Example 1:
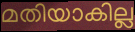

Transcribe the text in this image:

മതിയാകില്ല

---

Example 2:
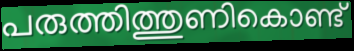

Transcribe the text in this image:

പരുത്തിത്തുണികൊണ്ട്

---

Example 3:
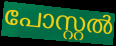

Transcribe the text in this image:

പോസ്റ്റൽ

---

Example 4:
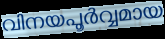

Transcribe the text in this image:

വിനയപൂർവ്വമായ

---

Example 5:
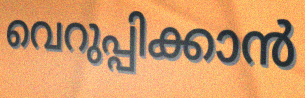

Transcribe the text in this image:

വെറുപ്പിക്കാൻ